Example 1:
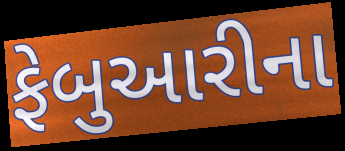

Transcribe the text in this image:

ફેબુઆરીના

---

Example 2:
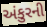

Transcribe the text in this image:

અંકુરની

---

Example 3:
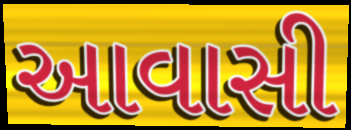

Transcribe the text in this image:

આવાસી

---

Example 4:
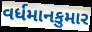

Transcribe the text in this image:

વર્ધમાનકુમાર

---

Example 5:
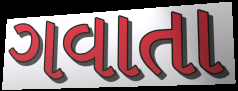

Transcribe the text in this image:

ગવાતા